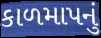
કાળમાપનું